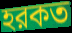
হরকত